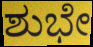
ಶುಭೇ